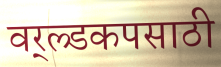
वर्ल्डकपसाठी